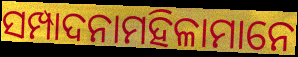
ସମ୍ପାଦନାମହିଳାମାନେ